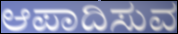
ಆಪಾದಿಸುವ